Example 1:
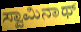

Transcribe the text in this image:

ಸ್ವಾಮಿನಾಥ್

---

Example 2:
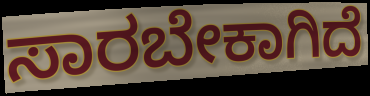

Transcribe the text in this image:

ಸಾರಬೇಕಾಗಿದೆ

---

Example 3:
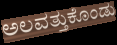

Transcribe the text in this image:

ಅಲವತ್ತುಕೊಂಡು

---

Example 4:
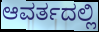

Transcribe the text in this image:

ಆವರ್ತದಲ್ಲಿ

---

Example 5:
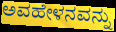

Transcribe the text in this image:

ಅವಹೇಳನವನ್ನು